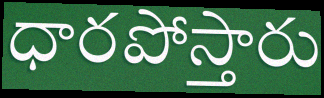
ధారపోస్తారు